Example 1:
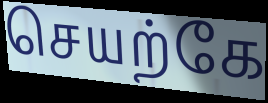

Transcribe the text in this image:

செயற்கே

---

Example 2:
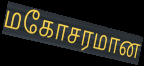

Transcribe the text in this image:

மகோசரமான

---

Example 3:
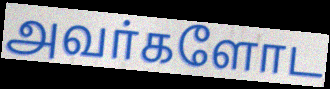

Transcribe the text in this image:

அவர்களோட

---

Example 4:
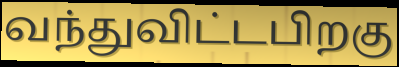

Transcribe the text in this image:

வந்துவிட்டபிறகு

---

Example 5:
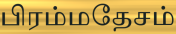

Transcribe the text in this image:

பிரம்மதேசம்